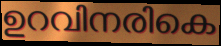
ഉറവിനരികെ